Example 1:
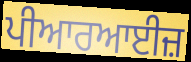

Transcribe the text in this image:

ਪੀਆਰਆਈਜ਼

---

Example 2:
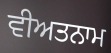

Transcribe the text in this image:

ਵੀਅਤਨਾਮ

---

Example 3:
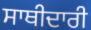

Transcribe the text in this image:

ਸਾਥੀਦਾਰੀ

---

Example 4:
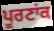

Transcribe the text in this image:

ਪੂਰਣਾਂਕ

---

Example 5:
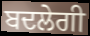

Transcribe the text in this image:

ਬਦਲੇਗੀ